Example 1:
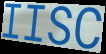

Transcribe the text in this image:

IISC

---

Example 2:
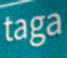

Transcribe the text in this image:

taga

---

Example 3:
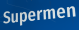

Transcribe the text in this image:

Supermen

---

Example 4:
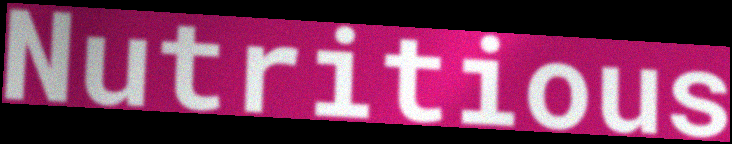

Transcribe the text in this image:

Nutritious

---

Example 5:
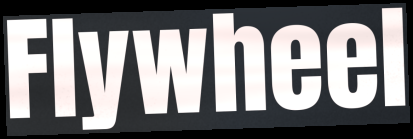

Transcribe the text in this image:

Flywheel